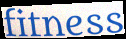
fitness